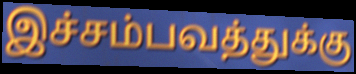
இச்சம்பவத்துக்கு